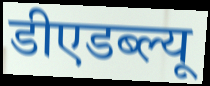
डीएडब्ल्यू